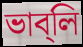
ভাব্‌লি